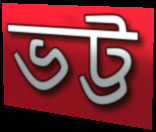
ভট্ট